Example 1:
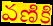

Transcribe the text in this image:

వణికి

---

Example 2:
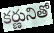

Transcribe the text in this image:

కర్ణునితో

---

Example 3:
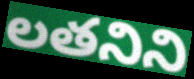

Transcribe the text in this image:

లతనిని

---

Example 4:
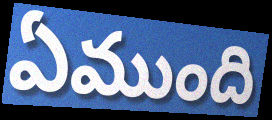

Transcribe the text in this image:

ఏముంది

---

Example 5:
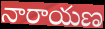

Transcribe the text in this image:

నారాయణ